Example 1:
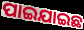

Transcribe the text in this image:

ପାଇଯାଇଛ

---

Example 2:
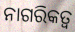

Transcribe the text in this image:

ନାଗରିକତ୍ୱ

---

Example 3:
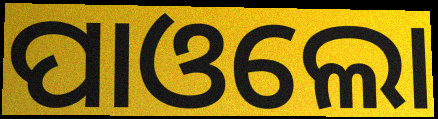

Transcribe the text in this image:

ପାଓଲୋ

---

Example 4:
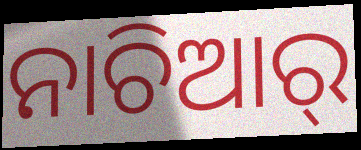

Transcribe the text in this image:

ନାଚିଆର୍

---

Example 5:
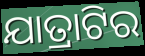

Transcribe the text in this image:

ଯାତ୍ରାଟିର